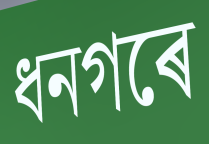
ধনগৰে